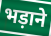
भड़ाने